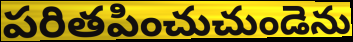
పరితపించుచుండెను